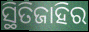
ସ୍ଥିତିଜାହିର